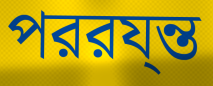
পররয্ন্ত